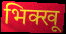
भिक्खू